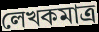
লেখকমাত্র